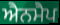
ਐਨਮੈਪ